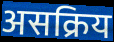
असक्रिय